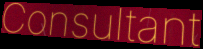
Consultant